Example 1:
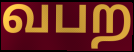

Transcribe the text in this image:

வபற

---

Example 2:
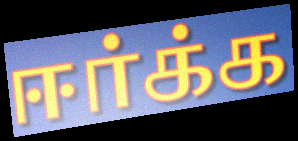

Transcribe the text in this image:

ஈர்க்க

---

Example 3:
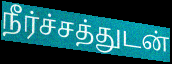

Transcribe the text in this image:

நீர்ச்சத்துடன்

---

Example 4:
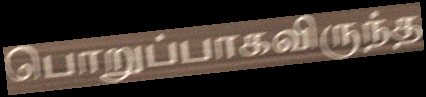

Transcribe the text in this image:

பொறுப்பாகவிருந்த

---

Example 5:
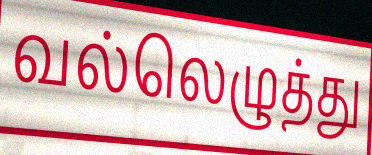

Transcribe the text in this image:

வல்லெழுத்து